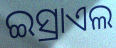
ଇସ୍ରାଏଲ